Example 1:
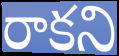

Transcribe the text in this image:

రాకని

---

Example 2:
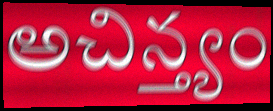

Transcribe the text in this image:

అచిన్త్యం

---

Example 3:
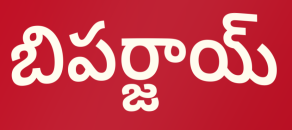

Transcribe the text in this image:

బిపర్జాయ్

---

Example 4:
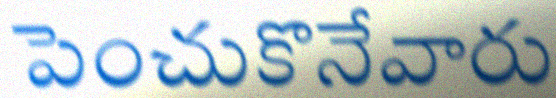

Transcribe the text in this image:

పెంచుకొనేవారు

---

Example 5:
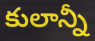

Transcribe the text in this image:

కులాన్నీ